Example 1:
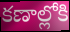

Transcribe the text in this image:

కణాల్లోకి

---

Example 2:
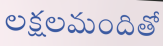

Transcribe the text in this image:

లక్షలమందితో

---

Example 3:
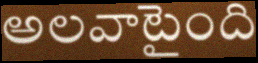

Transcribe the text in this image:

అలవాటైంది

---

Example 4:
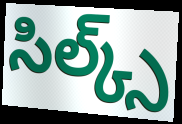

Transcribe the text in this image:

సిల్క్స్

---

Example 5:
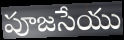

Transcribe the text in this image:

పూజసేయు